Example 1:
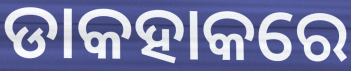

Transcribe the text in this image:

ଡାକହାକରେ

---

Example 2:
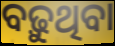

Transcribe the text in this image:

ବଢ଼ୁଥିବା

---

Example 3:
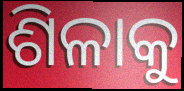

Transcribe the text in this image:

ଶିଳାକୁ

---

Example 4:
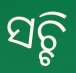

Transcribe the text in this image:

ସଚ୍ଚି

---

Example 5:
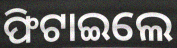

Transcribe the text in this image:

ଫିଟାଇଲେ